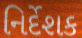
નિર્દેશક